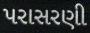
પરાસરણી